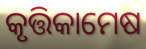
କୃତ୍ତିକାମେଷ